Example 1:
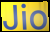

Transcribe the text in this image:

Jio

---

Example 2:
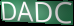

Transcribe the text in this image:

DADC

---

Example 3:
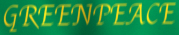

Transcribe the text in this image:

GREENPEACE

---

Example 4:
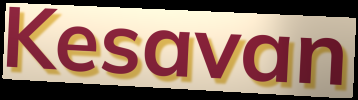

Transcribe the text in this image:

Kesavan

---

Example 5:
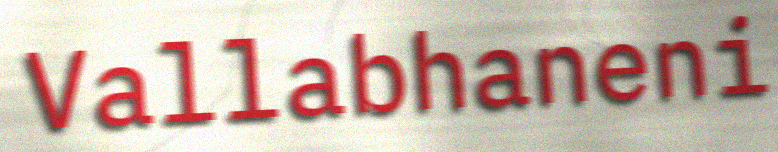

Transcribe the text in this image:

Vallabhaneni